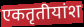
एकतृतीयांश